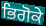
ਭਿਗੋਕੇ